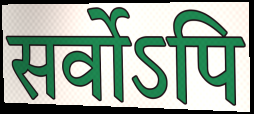
सर्वोऽपि